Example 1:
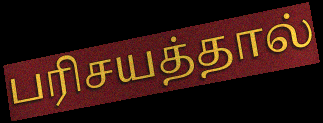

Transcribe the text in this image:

பரிசயத்தால்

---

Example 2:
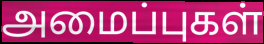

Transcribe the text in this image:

அமைப்புகள்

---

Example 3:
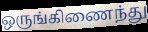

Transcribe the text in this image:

ஒருங்கிணைந்து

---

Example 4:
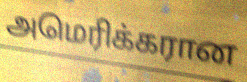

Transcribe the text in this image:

அமெரிக்கரான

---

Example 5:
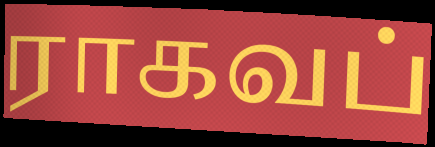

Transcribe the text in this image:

ராகவப்